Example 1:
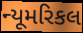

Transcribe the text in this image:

ન્યૂમરિકલ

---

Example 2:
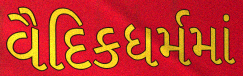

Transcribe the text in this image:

વૈદિકધર્મમાં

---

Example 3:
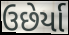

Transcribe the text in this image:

ઉછેર્યા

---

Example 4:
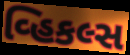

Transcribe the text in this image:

વ્હિકલ્સ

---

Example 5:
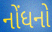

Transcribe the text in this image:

નોંધનો